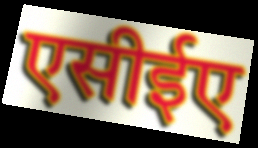
एसीईए